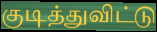
குடித்துவிட்டு